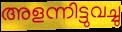
അളന്നിട്ടുവച്ചു